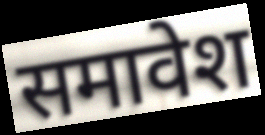
समावेश